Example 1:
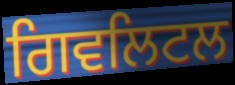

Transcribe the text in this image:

ਗਿਵਲਿਟਲ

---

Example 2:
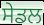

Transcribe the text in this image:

ਸੇਡਲ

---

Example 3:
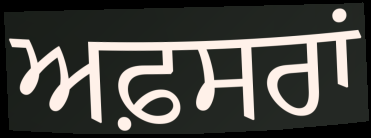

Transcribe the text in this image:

ਅਫ਼ਸਰਾਂ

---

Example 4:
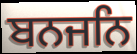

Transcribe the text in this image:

ਬਨਜਨਿ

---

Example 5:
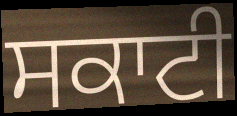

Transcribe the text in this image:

ਸਕਾਟੀ